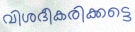
വിശദീകരിക്കട്ടെ